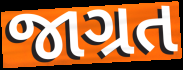
જાગ્રત